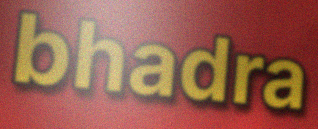
bhadra